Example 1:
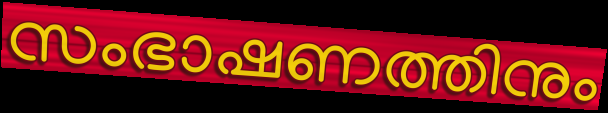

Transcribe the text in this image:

സംഭാഷണത്തിനും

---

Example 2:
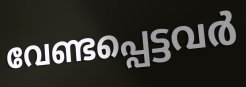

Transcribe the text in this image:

വേണ്ടപ്പെട്ടവർ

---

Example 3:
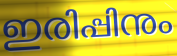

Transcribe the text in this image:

ഇരിപ്പിനും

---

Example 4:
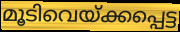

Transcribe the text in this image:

മൂടിവെയ്ക്കപ്പെട്ട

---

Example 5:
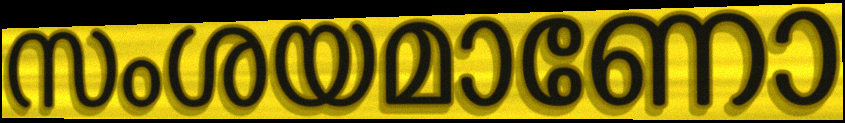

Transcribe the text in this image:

സംശയമാണോ